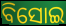
ବିସୋଇ